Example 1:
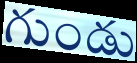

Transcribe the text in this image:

గుండు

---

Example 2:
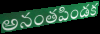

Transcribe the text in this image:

అనంతపిండక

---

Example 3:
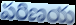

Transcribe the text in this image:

పరిణయ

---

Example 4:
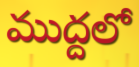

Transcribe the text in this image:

ముద్దలో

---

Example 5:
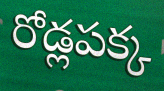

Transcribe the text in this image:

రోడ్లపక్క